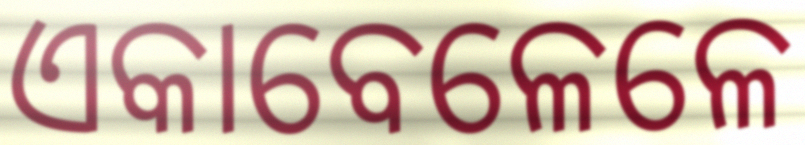
ଏକାବେଳେଳେ